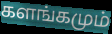
களங்கமும்